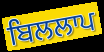
ਬਿਲਲਾਪ